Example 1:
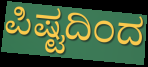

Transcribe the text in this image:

ಪಿಷ್ಟದಿಂದ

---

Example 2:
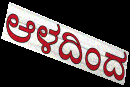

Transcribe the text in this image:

ಆಳದಿಂದ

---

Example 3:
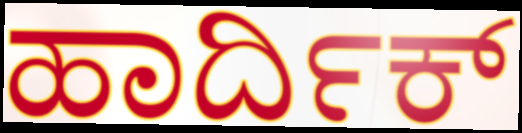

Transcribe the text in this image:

ಹಾರ್ದಿಕ್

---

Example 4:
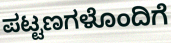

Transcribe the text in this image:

ಪಟ್ಟಣಗಳೊಂದಿಗೆ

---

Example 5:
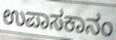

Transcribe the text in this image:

ಉಪಾಸಕಾನಂ